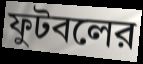
ফুটবলের